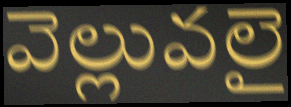
వెల్లువలై